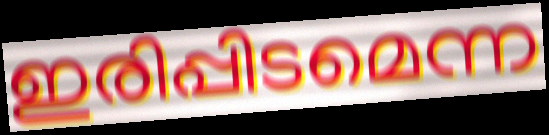
ഇരിപ്പിടമെന്ന